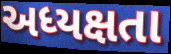
અધ્યક્ષતા